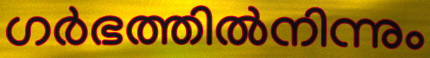
ഗർഭത്തിൽനിന്നും